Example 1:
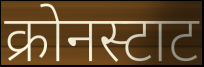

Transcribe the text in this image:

क्रोनस्टाट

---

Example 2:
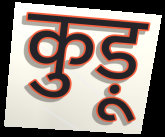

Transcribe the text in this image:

कुड़ू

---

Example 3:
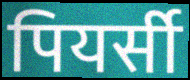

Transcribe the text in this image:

पियर्सी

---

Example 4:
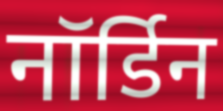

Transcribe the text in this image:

नॉर्डिन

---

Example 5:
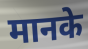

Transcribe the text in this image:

मानके